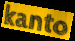
kanto